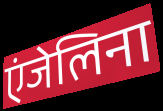
एंजेलिना